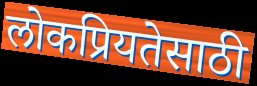
लोकप्रियतेसाठी